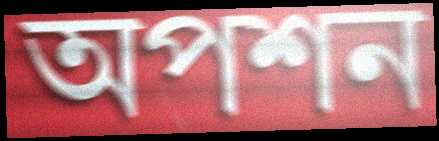
অপশন